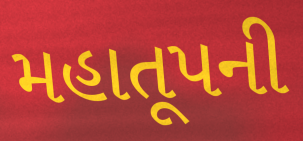
મહાતૂપની